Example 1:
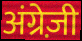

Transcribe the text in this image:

अंग्रेज़ी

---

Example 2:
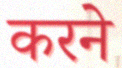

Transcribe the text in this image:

करने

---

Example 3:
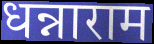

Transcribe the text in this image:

धन्नाराम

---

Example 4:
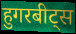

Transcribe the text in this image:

हुगरबीट्स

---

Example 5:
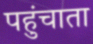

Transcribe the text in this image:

पहुंचाता